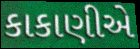
કાકાણીએ